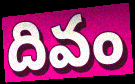
దివం